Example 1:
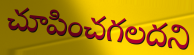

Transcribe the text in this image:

చూపించగలదని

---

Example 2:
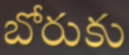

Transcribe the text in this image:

బోరుకు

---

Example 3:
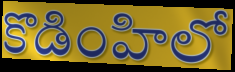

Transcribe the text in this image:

కొడింహిలో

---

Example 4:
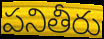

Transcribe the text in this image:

పనితీరు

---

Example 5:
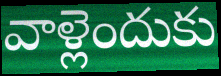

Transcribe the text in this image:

వాళ్లెందుకు